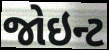
જોઇન્ટ